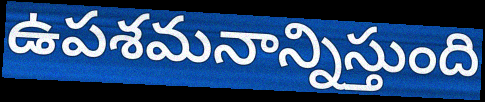
ఉపశమనాన్నిస్తుంది